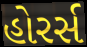
હોરર્સ